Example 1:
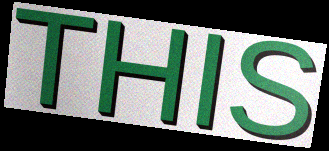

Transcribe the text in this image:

THIS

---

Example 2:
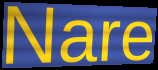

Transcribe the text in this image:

Nare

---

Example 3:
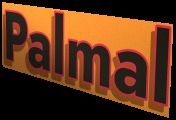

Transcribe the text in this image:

Palmal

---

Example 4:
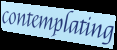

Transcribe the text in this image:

contemplating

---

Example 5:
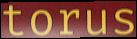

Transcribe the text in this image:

torus